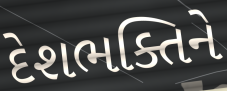
દેશભક્તિને